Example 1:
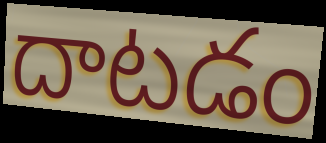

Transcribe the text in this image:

దాటడం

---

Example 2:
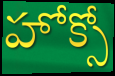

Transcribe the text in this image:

హోక్సో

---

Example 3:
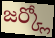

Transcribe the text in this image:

జర్క్లో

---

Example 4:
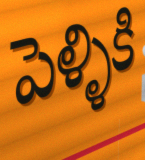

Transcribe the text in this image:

పెళ్ళికి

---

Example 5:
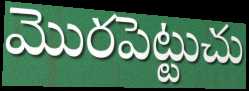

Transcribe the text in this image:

మొరపెట్టుచు